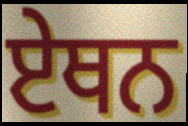
ਏਥਨ